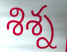
శిశ్న